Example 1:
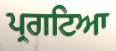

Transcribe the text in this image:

ਪ੍ਰਗਟਿਆ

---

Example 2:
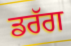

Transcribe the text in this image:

ਡਰੱਗ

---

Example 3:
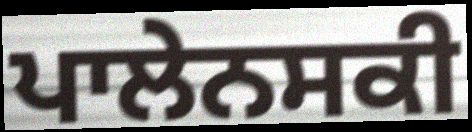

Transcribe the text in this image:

ਪਾਲੇਨਸਕੀ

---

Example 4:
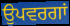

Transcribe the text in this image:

ਉਪਵਰਗਾਂ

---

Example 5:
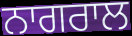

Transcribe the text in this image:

ਨਾਗਰਾਲ